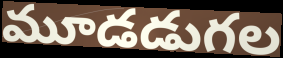
మూడడుగల